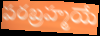
పరబ్రహ్మయే